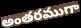
అంతరముగా